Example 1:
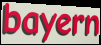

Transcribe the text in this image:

bayern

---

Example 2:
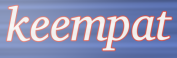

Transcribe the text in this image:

keempat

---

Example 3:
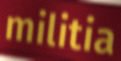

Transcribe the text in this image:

militia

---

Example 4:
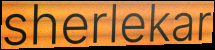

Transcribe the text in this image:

sherlekar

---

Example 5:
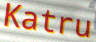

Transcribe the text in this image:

Katru